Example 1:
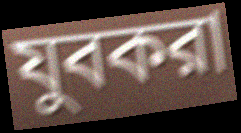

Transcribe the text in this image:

যুবকরা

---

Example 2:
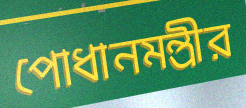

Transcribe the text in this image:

পোধানমন্ত্রীর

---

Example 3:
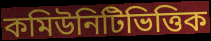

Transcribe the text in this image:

কমিউনিটিভিত্তিক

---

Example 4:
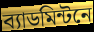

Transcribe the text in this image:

ব্যাডমিন্টনে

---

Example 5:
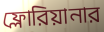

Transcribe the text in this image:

ফ্লোরিয়ানার